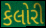
કેલોરી